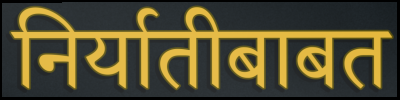
निर्यातीबाबत